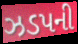
ઝડપની